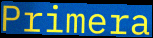
Primera